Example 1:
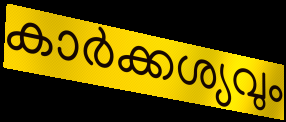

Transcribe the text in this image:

കാർക്കശ്യവും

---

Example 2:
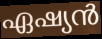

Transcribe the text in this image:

ഏഷ്യൻ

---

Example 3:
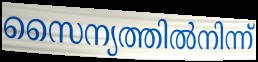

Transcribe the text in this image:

സൈന്യത്തിൽനിന്ന്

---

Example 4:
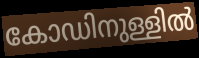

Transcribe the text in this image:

കോഡിനുള്ളിൽ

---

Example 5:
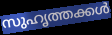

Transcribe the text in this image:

സുഹൃത്തക്കൾ